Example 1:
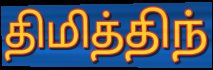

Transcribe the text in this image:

திமித்திந்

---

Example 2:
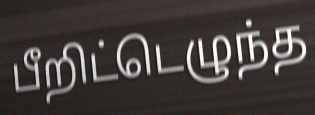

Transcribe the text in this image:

பீறிட்டெழுந்த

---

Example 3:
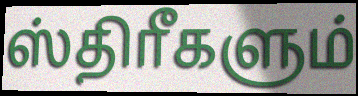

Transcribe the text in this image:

ஸ்திரீகளும்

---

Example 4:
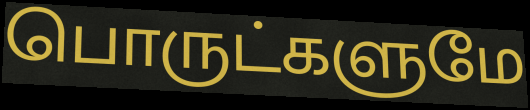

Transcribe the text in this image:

பொருட்களுமே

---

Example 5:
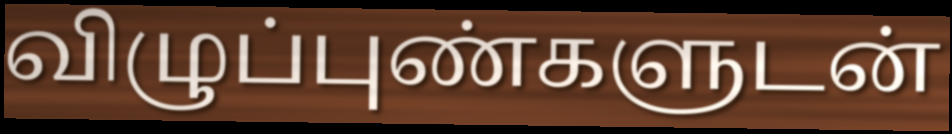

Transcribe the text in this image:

விழுப்புண்களுடன்